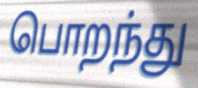
பொறந்து